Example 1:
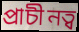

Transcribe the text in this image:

প্ৰাচীনত্ব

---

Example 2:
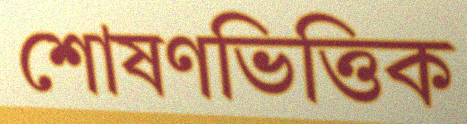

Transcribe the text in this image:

শোষণভিত্তিক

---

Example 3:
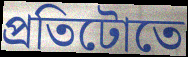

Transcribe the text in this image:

প্ৰতিটোতে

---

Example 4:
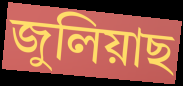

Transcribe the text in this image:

জুলিয়াছ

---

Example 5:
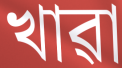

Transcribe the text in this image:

খাৱা